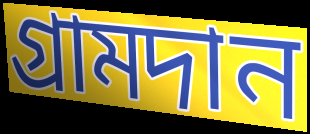
গ্রামদান